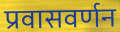
प्रवासवर्णन